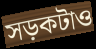
সড়কটাও